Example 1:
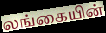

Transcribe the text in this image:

லங்கையின்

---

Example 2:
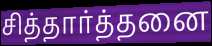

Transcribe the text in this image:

சித்தார்த்தனை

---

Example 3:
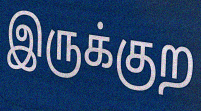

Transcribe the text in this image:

இருக்குற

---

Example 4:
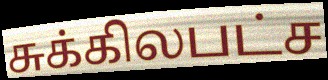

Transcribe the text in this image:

சுக்கிலபட்ச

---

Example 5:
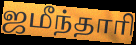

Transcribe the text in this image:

ஜமீந்தாரி